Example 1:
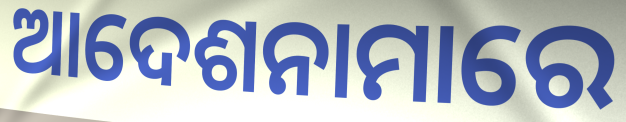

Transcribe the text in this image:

ଆଦେଶନାମାରେ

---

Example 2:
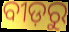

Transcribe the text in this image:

ବୀଡ଼ରୁ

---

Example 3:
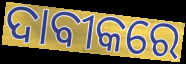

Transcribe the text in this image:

ଦାବୀକରେ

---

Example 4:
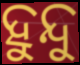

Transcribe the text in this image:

ହୁନ୍ଦୁ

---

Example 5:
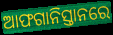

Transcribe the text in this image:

ଆଫଗାନିସ୍ତାନରେ